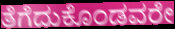
ತೆಗೆದುಕೊಂಡವರೇ